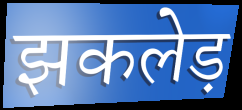
झकलेड़